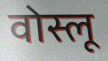
वोस्लू